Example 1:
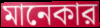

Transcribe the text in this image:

মানেকার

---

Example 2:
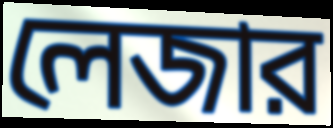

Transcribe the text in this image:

লেজার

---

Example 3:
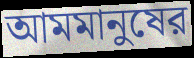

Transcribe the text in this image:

আমমানুষের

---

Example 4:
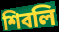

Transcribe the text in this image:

শিবলি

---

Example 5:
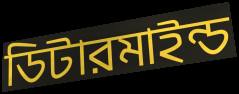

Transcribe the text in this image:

ডিটারমাইন্ড